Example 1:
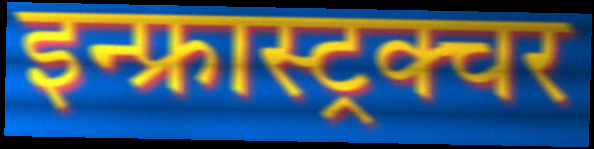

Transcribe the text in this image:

इन्फ्रास्ट्रक्‍चर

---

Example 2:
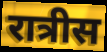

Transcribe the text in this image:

रात्रीस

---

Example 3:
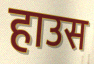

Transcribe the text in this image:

हाउस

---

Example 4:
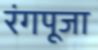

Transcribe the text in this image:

रंगपूजा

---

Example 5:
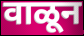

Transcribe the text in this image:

वाळून